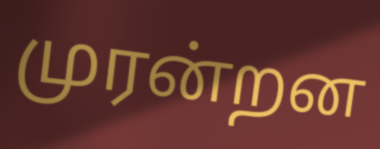
முரன்றன